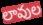
లావుల